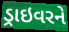
ડ્રાઇવરને